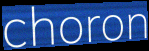
choron